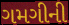
ગમગીની